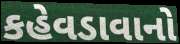
કહેવડાવાનો